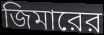
জিমারের